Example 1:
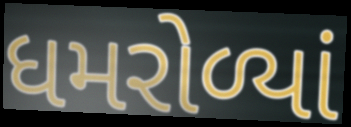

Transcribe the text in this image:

ધમરોળ્યાં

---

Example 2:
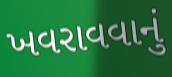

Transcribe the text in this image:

ખવરાવવાનું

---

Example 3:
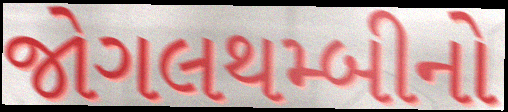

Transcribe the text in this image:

જોગલથમ્બીનો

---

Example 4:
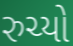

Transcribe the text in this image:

રુચ્યો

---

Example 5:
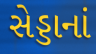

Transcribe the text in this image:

સેડ્ડાનાં